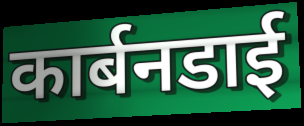
कार्बनडाई